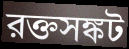
রক্তসঙ্কট